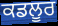
ਕਡਲੂਰ